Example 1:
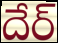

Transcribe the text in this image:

దేర్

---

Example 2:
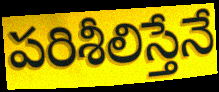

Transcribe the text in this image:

పరిశీలిస్తేనే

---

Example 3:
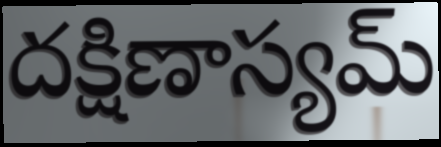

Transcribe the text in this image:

దక్షిణాస్యమ్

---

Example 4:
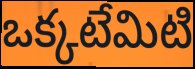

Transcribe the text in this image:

ఒక్కటేమిటి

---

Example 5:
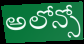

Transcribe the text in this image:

అలోన్సో